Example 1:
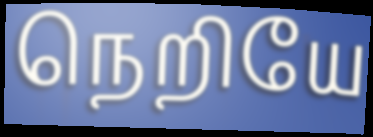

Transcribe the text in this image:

நெறியே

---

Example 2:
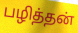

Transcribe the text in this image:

பழித்தன்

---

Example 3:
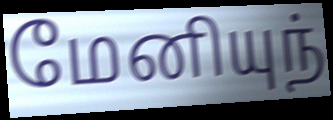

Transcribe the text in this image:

மேனியுந்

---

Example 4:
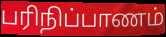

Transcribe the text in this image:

பரிநிப்பாணம்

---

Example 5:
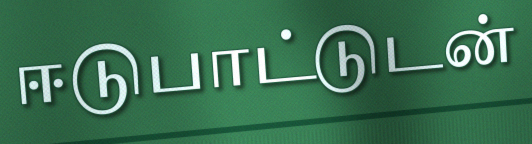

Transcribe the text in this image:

ஈடுபாட்டுடன்